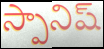
స్పానిష్